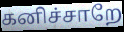
கனிச்சாறே